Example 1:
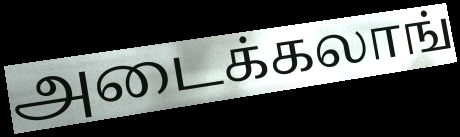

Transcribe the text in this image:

அடைக்கலாங்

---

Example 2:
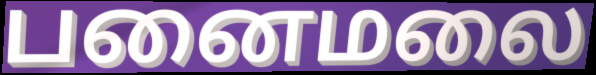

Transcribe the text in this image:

பனைமலை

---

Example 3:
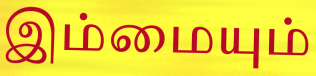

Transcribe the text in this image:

இம்மையும்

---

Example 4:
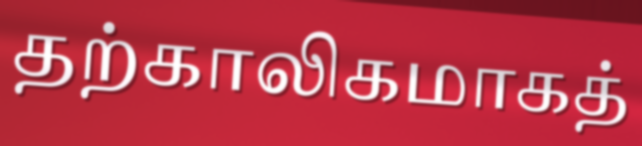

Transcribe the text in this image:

தற்காலிகமாகத்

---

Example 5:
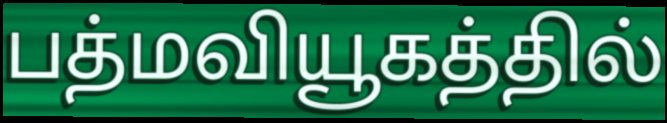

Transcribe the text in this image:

பத்மவியூகத்தில்